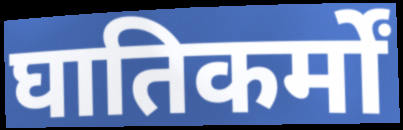
घातिकर्मों